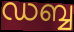
ഡബ്ബ